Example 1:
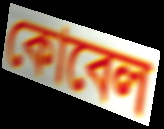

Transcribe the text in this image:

কোবেল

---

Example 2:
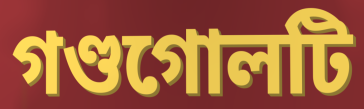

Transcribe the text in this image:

গণ্ডগোলটি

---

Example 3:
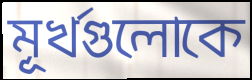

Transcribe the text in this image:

মূর্খগুলোকে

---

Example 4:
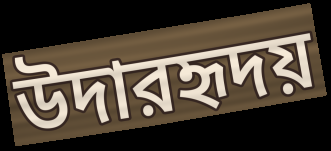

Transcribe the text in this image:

উদারহৃদয়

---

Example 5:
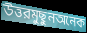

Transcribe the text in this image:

উত্তরমুছুনঅনেক